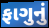
ફાગુનું